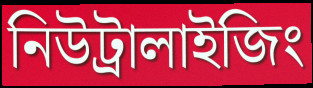
নিউট্রালাইজিং